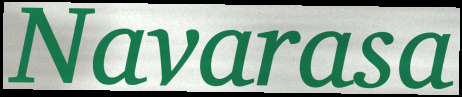
Navarasa